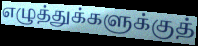
எழுத்துக்களுக்குத்